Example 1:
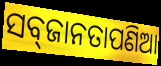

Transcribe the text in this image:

ସବ୍‌ଜାନତାପଣିଆ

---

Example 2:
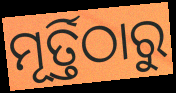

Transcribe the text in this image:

ମୂର୍ତ୍ତିଠାରୁ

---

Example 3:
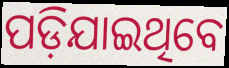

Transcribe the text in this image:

ପଡ଼ିଯାଇଥିବେ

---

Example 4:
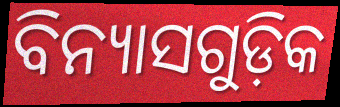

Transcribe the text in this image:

ବିନ୍ୟାସଗୁଡ଼ିକ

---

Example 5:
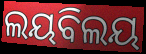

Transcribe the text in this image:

ଲୟବିଲୟ